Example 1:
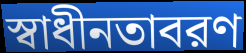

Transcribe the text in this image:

স্বাধীনতাবরণ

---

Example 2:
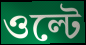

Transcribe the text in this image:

ওল্টে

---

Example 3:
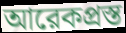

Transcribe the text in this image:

আরেকপ্রস্ত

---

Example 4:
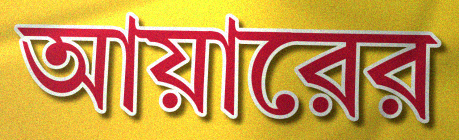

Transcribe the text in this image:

আয়ারের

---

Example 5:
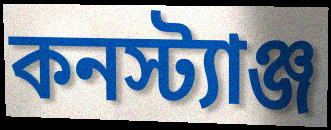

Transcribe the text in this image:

কনস্ট্যাঞ্জ